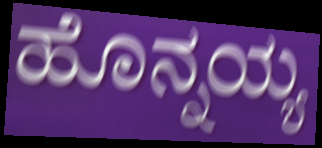
ಹೊನ್ನಯ್ಯ